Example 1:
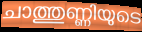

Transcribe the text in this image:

ചാത്തുണ്ണിയുടെ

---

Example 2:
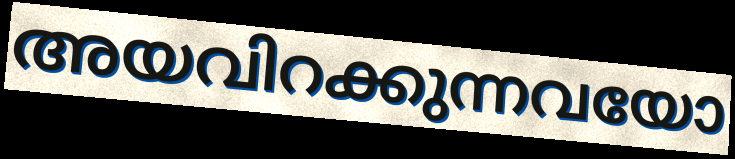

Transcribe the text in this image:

അയവിറക്കുന്നവയോ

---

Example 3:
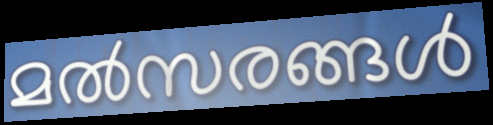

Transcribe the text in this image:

മൽസരങ്ങൾ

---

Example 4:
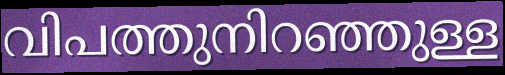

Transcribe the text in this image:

വിപത്തുനിറഞ്ഞുള്ള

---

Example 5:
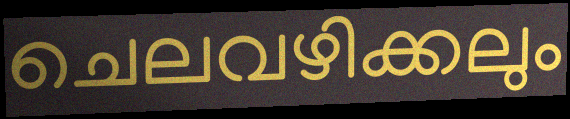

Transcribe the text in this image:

ചെലവഴിക്കലും